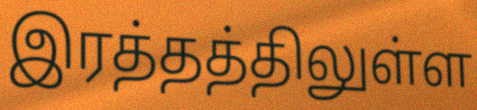
இரத்தத்திலுள்ள